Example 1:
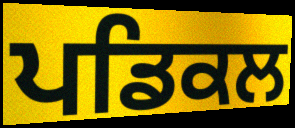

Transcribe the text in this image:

ਪਡਿਕਲ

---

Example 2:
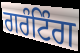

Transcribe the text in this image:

ਗਰੰਟਿੰਗ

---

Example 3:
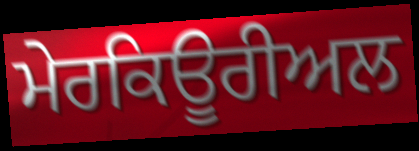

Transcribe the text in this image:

ਮੇਰਕਿਊਰੀਅਲ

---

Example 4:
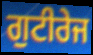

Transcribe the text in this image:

ਗੁਟੀਰੇਜ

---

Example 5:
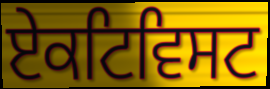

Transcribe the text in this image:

ਏਕਟਿਵਿਸਟ